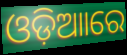
ଓଡ଼ିଆାରେ